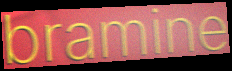
bramine